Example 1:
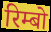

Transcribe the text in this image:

रिम्बो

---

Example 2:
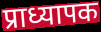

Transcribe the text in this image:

प्राध्यापक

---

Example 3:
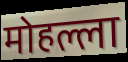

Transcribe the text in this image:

मोहल्‍ला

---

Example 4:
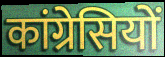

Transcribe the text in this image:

कांग्रेसियों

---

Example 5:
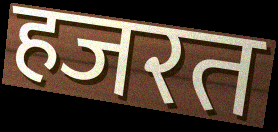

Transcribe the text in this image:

हजरत